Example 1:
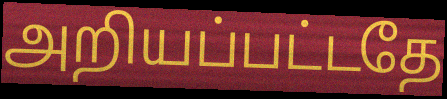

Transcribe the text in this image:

அறியப்பட்டதே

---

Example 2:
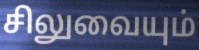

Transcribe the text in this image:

சிலுவையும்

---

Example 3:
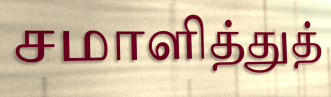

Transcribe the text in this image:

சமாளித்துத்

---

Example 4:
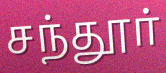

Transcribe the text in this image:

சந்தூர்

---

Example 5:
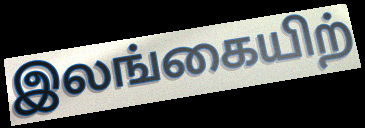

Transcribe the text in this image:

இலங்கையிற்